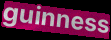
guinness